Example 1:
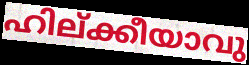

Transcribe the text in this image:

ഹില്ക്കീയാവു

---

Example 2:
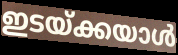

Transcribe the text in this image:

ഇടയ്ക്കയാൾ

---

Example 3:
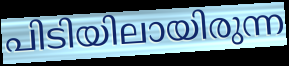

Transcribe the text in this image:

പിടിയിലായിരുന്ന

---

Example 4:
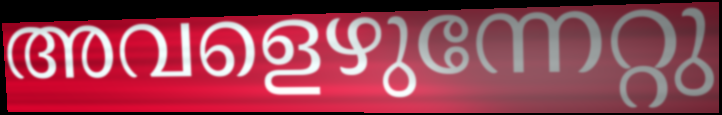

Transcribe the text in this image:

അവളെഴുന്നേറ്റു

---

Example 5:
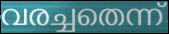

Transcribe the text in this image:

വരച്ചതെന്ന്